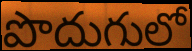
పొదుగులో